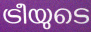
ട്രീയുടെ